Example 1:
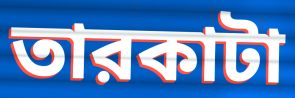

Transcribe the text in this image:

তারকাটা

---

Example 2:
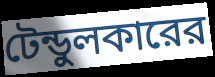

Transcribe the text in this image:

টেন্ডুলকারের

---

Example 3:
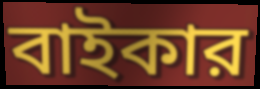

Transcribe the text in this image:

বাইকার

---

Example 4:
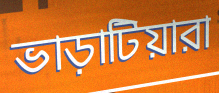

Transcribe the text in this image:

ভাড়াটিয়ারা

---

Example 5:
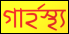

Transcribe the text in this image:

গার্হস্থ্য